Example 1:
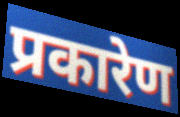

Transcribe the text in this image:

प्रकारेण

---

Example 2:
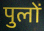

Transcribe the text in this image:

पुलों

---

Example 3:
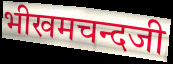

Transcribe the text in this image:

भीखमचन्दजी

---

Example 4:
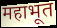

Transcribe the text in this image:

महाभूत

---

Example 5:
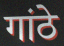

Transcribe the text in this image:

गांठे